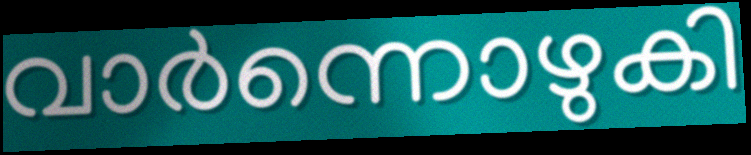
വാർന്നൊഴുകി